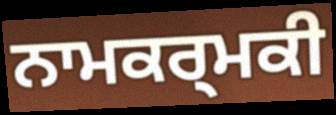
ਨਾਮਕਰ੍ਮਕੀ